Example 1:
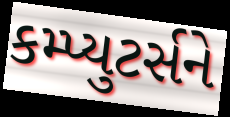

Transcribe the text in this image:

કમ્પ્યુટર્સને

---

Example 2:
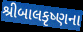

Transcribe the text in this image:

શ્રીબાલકૃષ્ણના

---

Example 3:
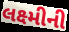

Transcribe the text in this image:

લક્ષ્મીની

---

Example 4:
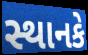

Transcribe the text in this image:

સ્થાનકે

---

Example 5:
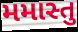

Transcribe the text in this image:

મમાસ્તુ